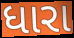
ધારા